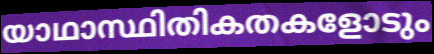
യാഥാസ്ഥിതികതകളോടും